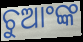
ଚୁଆଂଙ୍କ